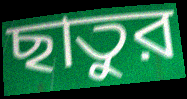
ছাতুর